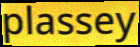
plassey